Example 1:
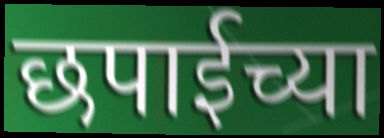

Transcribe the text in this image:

छपाईच्या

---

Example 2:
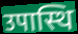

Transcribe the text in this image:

उपास्थि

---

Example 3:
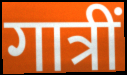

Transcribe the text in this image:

गात्रीं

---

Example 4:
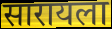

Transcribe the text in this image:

सारायला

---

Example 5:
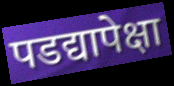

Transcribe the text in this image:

पडद्यापेक्षा